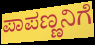
ಪಾಪಣ್ಣನಿಗೆ